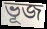
ভূজ